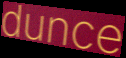
dunce